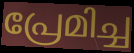
പ്രേമിച്ച